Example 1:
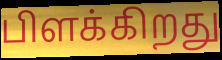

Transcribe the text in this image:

பிளக்கிறது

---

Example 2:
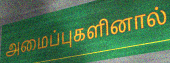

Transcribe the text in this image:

அமைப்புகளினால்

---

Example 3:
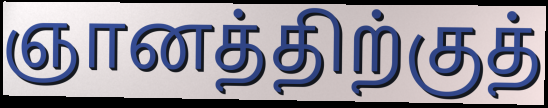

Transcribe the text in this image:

ஞானத்திற்குத்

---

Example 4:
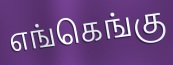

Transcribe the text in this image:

எங்கெங்கு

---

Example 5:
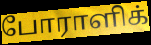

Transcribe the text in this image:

போராளிக்